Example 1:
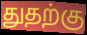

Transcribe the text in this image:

துதற்கு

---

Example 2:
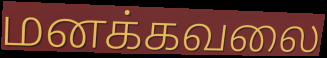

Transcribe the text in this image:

மனக்கவலை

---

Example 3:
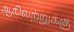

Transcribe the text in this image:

ஆகிவற்றுக்கு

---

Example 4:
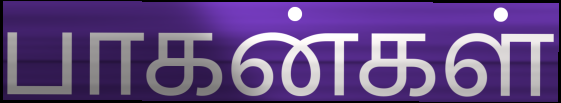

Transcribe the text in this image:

பாகன்கள்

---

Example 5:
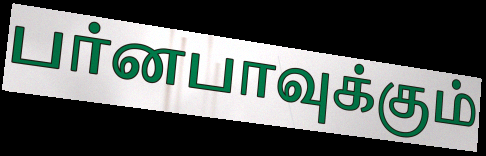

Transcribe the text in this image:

பர்னபாவுக்கும்